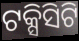
ଟକ୍ସିସିଟି